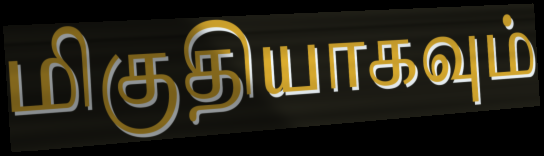
மிகுதியாகவும்